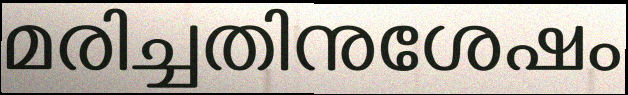
മരിച്ചതിനുശേഷം